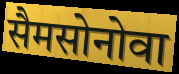
सैमसोनोवा